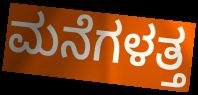
ಮನೆಗಳತ್ತ